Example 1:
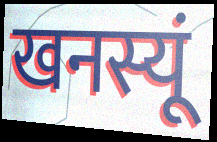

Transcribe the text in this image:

खनस्यूं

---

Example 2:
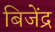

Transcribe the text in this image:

बिजेंद्र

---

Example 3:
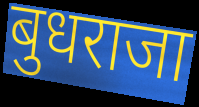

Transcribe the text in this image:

बुधराजा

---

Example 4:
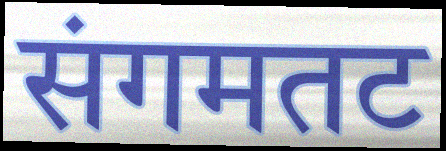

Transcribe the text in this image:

संगमतट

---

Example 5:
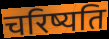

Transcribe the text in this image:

चरिष्यति